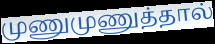
முணுமுணுத்தால்